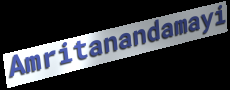
Amritanandamayi